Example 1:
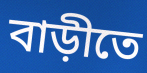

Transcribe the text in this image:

বাড়ীতে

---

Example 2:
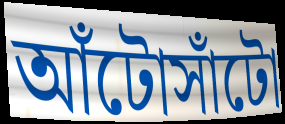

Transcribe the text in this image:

আঁটোসাঁটো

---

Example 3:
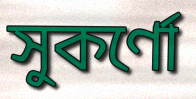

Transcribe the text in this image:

সুকর্ণো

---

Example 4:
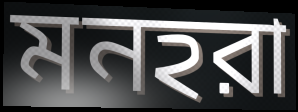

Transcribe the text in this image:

মনহরা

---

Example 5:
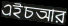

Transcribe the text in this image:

এইচআর